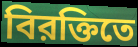
বিরক্তিতে